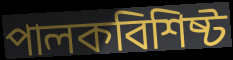
পালকবিশিষ্ট